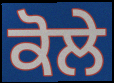
ਕੋਲੇ